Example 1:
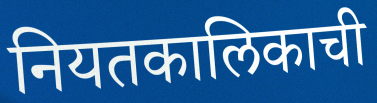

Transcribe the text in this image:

नियतकालिकाची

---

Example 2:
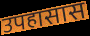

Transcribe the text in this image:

उपहासास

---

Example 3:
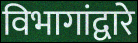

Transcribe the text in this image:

विभागांद्वारे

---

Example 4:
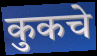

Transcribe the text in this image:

कुकचे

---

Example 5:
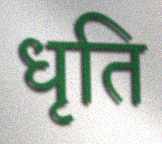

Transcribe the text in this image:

धृति